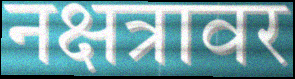
नक्षत्रावर